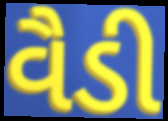
વૈડી